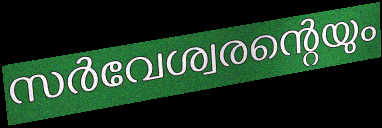
സർവേശ്വരന്റെയും